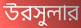
উরসুলার